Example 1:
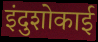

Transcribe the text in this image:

इंदुशोकाई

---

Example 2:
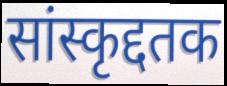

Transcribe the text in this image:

सांस्कृद्दतक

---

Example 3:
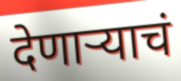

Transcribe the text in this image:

देणाऱ्याचं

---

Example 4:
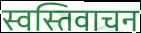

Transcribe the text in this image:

स्वस्तिवाचन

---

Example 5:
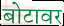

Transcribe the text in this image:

बोटावर